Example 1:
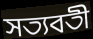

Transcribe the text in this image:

সত্যবতী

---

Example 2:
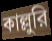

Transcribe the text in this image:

কাল্লুরি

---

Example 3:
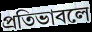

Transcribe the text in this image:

প্রতিভাবলে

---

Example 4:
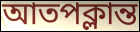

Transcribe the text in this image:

আতপক্লান্ত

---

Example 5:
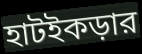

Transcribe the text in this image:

হাটইকড়ার